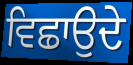
ਵਿਛਾਉਦੇ